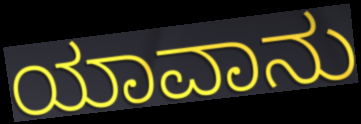
ಯಾವಾನು